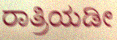
ರಾತ್ರಿಯಡೀ